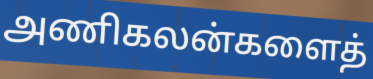
அணிகலன்களைத்